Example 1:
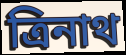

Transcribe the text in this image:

ত্রিনাথ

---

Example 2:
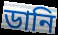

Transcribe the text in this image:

ডানি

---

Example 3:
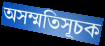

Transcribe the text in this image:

অসম্মতিসূচক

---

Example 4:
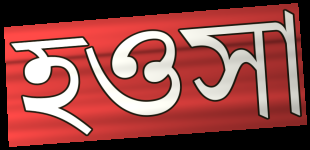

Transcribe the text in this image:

হওসা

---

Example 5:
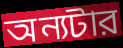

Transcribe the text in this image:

অন্যটার